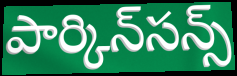
పార్కిన్‌సన్స్